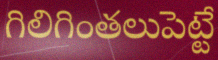
గిలిగింతలుపెట్టే